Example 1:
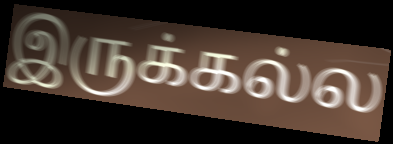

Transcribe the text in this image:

இருக்கல்ல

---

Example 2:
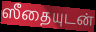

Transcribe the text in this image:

ஸீதையுடன்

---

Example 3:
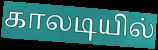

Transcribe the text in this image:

காலடியில்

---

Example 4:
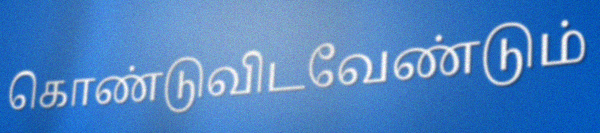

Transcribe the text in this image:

கொண்டுவிடவேண்டும்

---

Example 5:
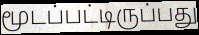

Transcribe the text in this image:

மூடப்பட்டிருப்பது